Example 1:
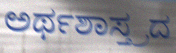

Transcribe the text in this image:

ಅರ್ಥಶಾಸ್ತ್ರದ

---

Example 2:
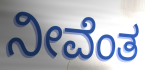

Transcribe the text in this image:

ನೀವೆಂತ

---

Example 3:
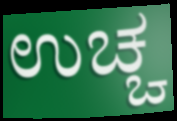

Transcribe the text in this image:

ಉಚ್ಚ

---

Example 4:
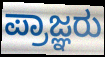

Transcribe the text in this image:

ಪ್ರಾಜ್ಞರು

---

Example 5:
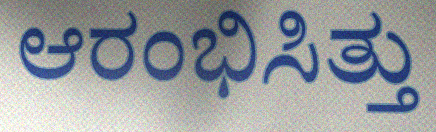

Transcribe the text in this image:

ಆರಂಭಿಸಿತ್ತು